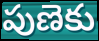
పుణెకు